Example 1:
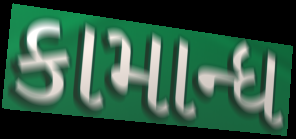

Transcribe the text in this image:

કામાન્ધ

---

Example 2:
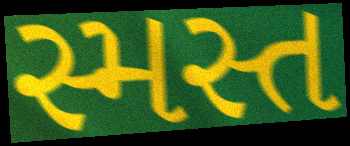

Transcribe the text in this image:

સ્મસ્ત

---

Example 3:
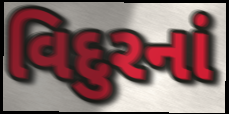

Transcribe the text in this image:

વિદુરનાં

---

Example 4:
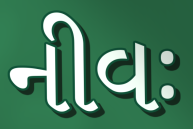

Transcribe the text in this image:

નીવઃ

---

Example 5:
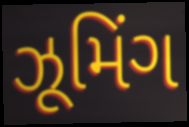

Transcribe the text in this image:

ઝૂમિંગ